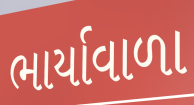
ભાર્યાવાળા